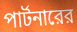
পার্টনারের